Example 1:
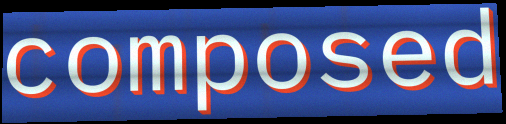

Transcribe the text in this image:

composed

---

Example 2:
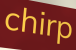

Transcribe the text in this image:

chirp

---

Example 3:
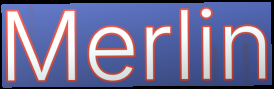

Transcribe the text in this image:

Merlin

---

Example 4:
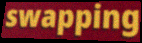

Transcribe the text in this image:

swapping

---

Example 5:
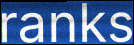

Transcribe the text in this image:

ranks